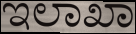
ಇಲಾಖಾ